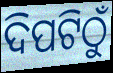
ଦିପଟିଠୁଁ